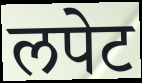
लपेट